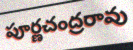
పూర్ణచంద్రరావు